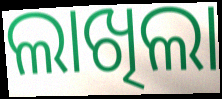
ଲାଖିଲା